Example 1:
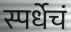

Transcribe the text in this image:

स्पर्धेचं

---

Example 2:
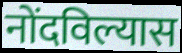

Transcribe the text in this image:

नोंदविल्यास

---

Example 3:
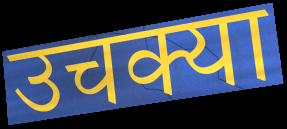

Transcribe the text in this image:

उचक्या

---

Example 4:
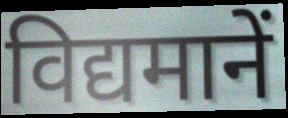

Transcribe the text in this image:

विद्यमानें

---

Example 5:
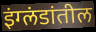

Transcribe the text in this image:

इंग्लंडांतील